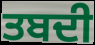
ਤਬਦੀ